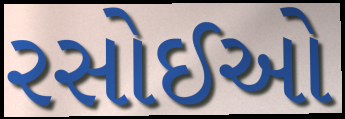
રસોઈઓ